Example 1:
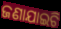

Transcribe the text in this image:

ଜଣାଯାଇଚି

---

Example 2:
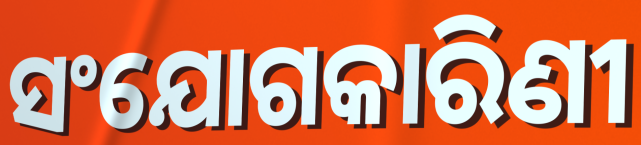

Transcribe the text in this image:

ସଂଯୋଗକାରିଣୀ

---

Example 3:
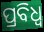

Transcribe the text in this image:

ପ୍ରବିଧ୍ଵ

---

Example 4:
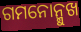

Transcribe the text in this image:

ଗମନୋନ୍ମୁଖ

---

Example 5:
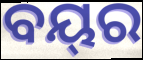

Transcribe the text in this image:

ବୟ୍‌ର